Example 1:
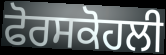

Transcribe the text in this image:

ਫੋਰਸਕੋਹਲੀ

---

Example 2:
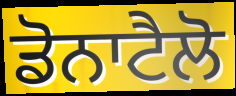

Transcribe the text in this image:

ਡੋਨਾਟੈਲੋ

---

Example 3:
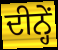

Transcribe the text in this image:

ਦੀਨ੍ਹੇਂ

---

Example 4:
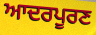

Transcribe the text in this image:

ਆਦਰਪੂਰਣ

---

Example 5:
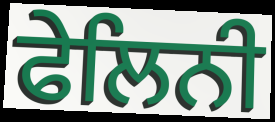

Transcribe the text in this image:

ਫੇਲਿਨੀ